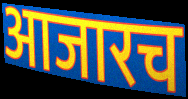
आजारच